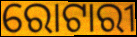
ରୋଟାରୀ